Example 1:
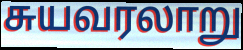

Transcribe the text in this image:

சுயவரலாறு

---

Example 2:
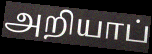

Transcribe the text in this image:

அறியாப்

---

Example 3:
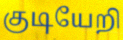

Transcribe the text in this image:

குடியேறி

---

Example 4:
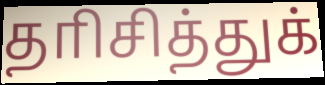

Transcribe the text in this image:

தரிசித்துக்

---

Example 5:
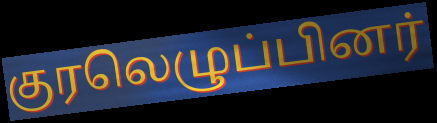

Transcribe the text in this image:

குரலெழுப்பினர்